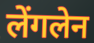
लेंगलेन